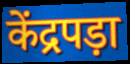
केंद्रपड़ा